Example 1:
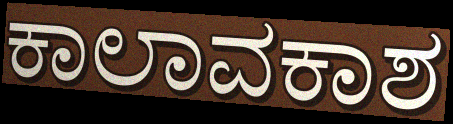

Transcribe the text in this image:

ಕಾಲಾವಕಾಶ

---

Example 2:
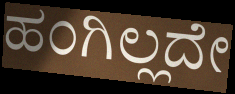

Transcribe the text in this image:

ಹಂಗಿಲ್ಲದೇ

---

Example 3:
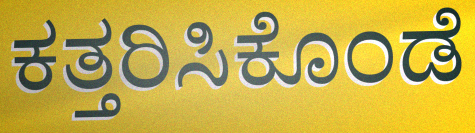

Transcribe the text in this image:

ಕತ್ತರಿಸಿಕೊಂಡೆ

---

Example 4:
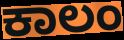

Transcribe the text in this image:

ಕಾಲಂ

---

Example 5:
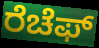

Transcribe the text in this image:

ರೆಚೆಫ್